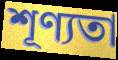
শূণ্যতা